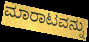
ಮಾರಾಟವನ್ನು